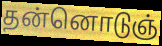
தன்னொடுஞ்